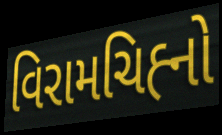
વિરામચિહ્‍નો